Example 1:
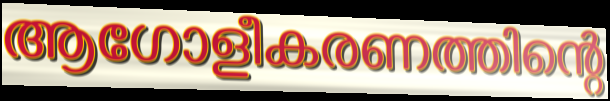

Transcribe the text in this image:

ആഗോളീകരണത്തിന്റെ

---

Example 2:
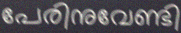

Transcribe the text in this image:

പേരിനുവേണ്ടി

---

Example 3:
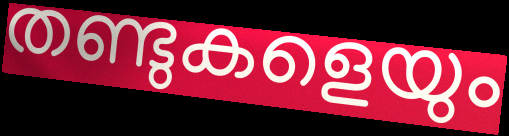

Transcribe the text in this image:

തണ്ടുകളെയും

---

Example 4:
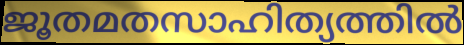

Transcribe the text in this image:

ജൂതമതസാഹിത്യത്തിൽ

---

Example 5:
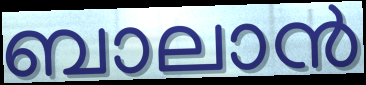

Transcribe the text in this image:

ബാലാൻ